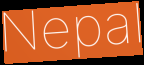
Nepal